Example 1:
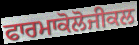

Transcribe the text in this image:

ਫਾਰਮਾਕੋਲੋਜੀਕਲ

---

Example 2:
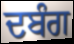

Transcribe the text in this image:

ਦਬੰਗ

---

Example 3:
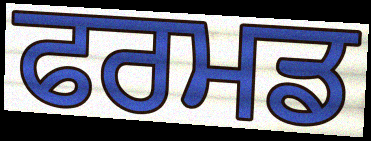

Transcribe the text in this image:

ਫਰਮਡ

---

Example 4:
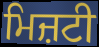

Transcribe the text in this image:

ਮਿਜ਼ਟੀ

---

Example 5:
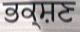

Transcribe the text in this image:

ਭਕ੍ਸ਼ਣ